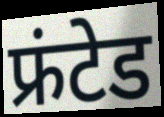
फ्रंटेड